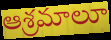
ఆశ్రమాలూ